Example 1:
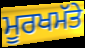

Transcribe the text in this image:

ਮੂਰਖਮੱਤੇ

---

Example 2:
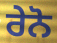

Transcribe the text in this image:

ਰੇਨੋ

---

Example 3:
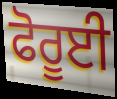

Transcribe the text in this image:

ਫੋਰੂਈ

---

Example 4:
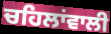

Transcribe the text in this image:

ਚਹਿਲਾਂਵਾਲੀ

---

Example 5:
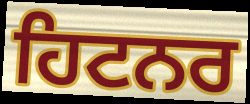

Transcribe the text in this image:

ਹਿਟਨਰ